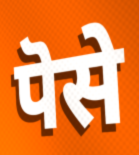
पॆसे